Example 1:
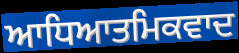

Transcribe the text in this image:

ਆਧਿਆਤਮਿਕਵਾਦ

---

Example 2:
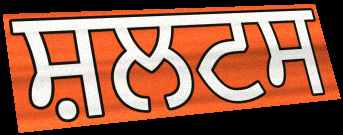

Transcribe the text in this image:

ਸ਼ਲਟਸ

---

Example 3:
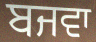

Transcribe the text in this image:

ਬਜਵਾ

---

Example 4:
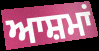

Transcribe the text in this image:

ਆਸ਼ਮਾਂ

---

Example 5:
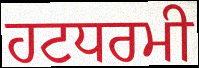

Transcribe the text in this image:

ਹਟਧਰਮੀ